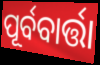
ପୂର୍ବବାର୍ତ୍ତା